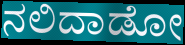
ನಲಿದಾಡೋ